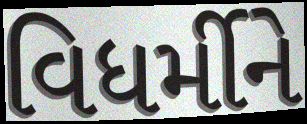
વિધર્મીને